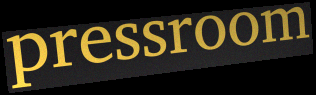
pressroom